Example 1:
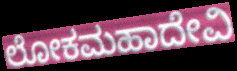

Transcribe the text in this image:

ಲೋಕಮಹಾದೇವಿ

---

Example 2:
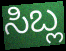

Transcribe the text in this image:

ಸಿಬ್ಲ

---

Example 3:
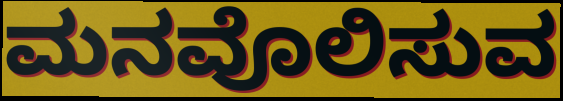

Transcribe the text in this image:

ಮನವೊಲಿಸುವ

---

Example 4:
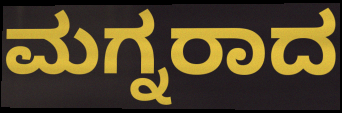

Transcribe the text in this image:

ಮಗ್ನರಾದ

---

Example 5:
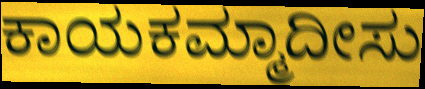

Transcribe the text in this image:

ಕಾಯಕಮ್ಮಾದೀಸು